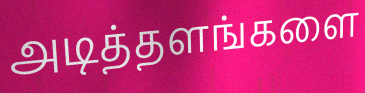
அடித்தளங்களை